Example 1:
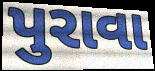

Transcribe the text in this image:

પુરાવા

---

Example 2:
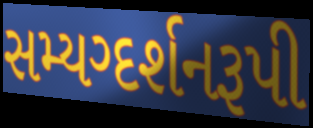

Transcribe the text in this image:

સમ્યગ્દર્શનરૂપી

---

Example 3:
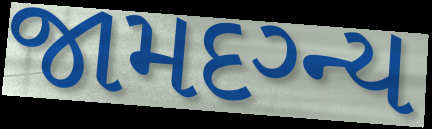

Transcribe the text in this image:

જામદગ્ન્ય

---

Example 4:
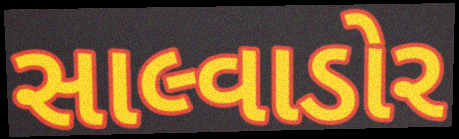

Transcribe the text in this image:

સાલ્વાડોર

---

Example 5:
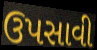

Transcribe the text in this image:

ઉપસાવી